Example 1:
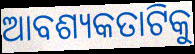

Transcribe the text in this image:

ଆବଶ୍ୟକତାଟିକୁ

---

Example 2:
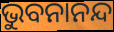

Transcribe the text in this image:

ଭୁବନାନନ୍ଦ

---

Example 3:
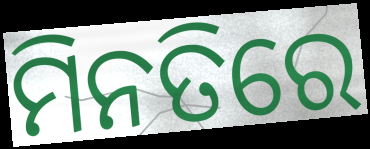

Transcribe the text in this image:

ମିନତିରେ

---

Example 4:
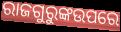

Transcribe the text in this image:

ରାଜଗୁରୁଙ୍କଉପରେ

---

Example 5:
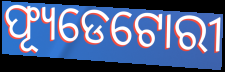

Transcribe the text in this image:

ଫ୍ୟୂଡେଟୋରୀ